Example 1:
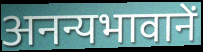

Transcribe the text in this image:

अनन्यभावानें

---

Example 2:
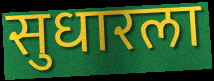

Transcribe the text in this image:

सुधारला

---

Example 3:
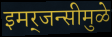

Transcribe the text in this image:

इमर्जन्सीमुळे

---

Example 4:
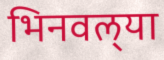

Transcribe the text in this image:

भिनवल्या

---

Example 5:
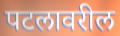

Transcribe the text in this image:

पटलावरील